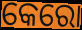
କେରୋ